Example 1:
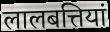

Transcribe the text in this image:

लालबत्तियां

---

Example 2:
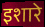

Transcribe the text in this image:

इशारे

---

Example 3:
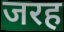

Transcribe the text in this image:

जरह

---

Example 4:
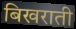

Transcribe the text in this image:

बिखराती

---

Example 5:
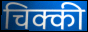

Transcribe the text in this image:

चिक्की